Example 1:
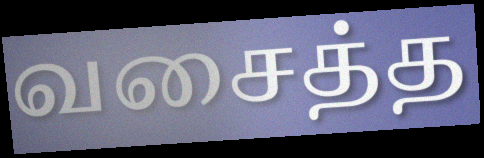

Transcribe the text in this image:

வசைத்த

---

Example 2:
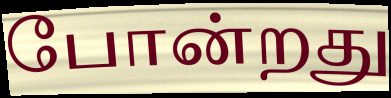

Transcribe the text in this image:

போன்றது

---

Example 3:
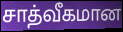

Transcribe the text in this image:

சாத்வீகமான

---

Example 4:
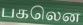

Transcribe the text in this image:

பகலென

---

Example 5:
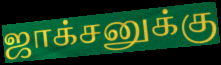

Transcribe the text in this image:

ஜாக்சனுக்கு